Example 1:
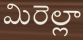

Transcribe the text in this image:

మిరెల్లా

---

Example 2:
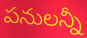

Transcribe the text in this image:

పనులన్నీ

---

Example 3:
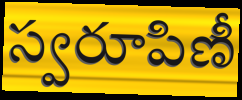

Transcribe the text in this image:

స్వరూపిణీ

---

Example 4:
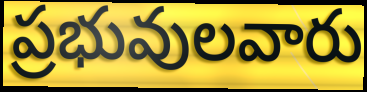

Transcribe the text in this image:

ప్రభువులవారు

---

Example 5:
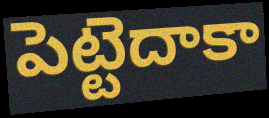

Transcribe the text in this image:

పెట్టెదాకా